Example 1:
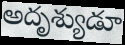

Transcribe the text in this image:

అదృశ్యుడూ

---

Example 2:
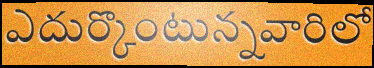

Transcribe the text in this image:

ఎదుర్కొంటున్నవారిలో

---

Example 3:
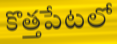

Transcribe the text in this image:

కొత్తపేటలో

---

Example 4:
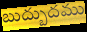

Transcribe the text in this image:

బుద్బుదము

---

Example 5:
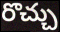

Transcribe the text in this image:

రొచ్చు